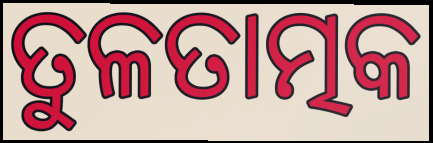
ତୁଳତାତ୍ମକ